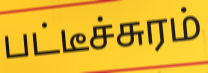
பட்டீச்சுரம்